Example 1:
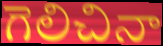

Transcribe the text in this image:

గెలిచినా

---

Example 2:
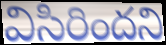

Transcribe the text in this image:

విసిరిందని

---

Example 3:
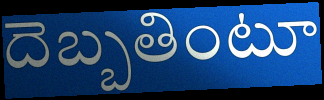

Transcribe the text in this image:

దెబ్బతింటూ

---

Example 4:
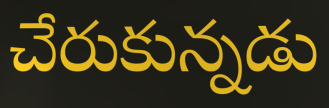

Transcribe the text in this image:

చేరుకున్నడు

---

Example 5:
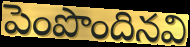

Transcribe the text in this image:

పెంపొందినవి